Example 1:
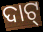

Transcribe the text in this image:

ଦାଟ୍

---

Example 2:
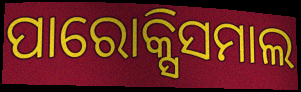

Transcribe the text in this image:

ପାରୋକ୍ସିସମାଲ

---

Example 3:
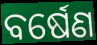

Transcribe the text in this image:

ବର୍ଷେଣ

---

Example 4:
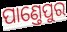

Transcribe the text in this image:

ପାଣ୍ତେପୁର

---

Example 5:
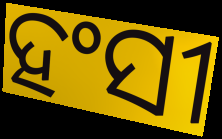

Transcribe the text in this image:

ହଂସୀ